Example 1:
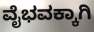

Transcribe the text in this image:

ವೈಭವಕ್ಕಾಗಿ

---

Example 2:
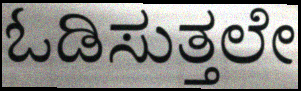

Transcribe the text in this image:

ಓಡಿಸುತ್ತಲೇ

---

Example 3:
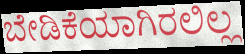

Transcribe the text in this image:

ಬೇಡಿಕೆಯಾಗಿರಲಿಲ್ಲ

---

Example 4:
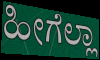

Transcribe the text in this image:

ಹೀಗೆಲ್ಲಾ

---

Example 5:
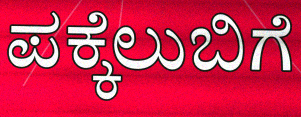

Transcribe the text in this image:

ಪಕ್ಕೆಲುಬಿಗೆ